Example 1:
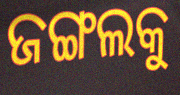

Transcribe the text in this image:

ଜଙ୍ଗଲକୁ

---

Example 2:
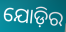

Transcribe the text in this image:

ଯୋଡ଼ିର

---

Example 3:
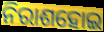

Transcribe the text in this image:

ନିରାଶହୋଇ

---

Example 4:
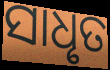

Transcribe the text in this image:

ସାଧୃତ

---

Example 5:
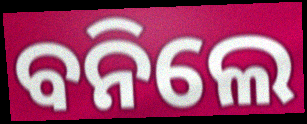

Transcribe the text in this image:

ବନିଲେ